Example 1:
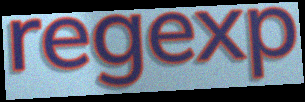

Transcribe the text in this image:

regexp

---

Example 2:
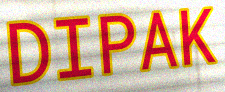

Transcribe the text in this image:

DIPAK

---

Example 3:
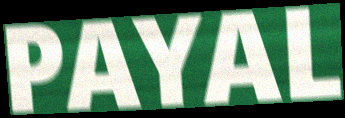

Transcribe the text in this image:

PAYAL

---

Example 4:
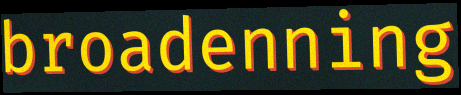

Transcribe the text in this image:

broadenning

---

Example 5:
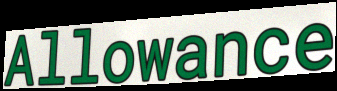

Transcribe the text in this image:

Allowance